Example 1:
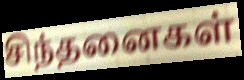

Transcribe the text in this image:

சிந்தனைகள்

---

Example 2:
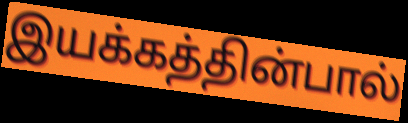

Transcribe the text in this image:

இயக்கத்தின்பால்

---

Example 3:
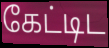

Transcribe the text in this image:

கேட்டிட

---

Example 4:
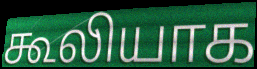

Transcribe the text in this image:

கூலியாக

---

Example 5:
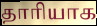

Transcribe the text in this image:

தாரியாக